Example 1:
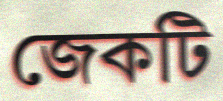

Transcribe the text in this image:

জেকটি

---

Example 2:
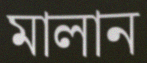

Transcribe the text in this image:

মালান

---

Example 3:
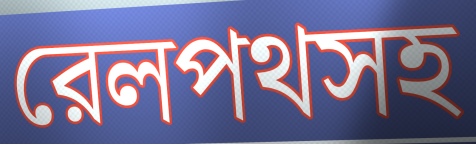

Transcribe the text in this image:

রেলপথসহ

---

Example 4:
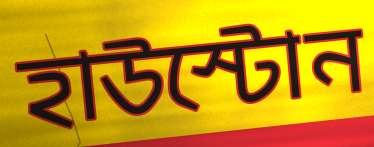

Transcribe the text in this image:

হাউস্টোন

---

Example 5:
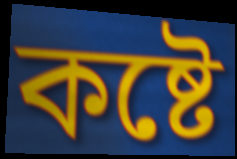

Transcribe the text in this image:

কষ্টে